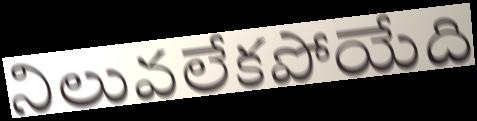
నిలువలేకపోయేది